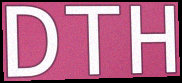
DTH